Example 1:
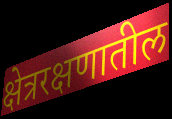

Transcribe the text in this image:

क्षेत्ररक्षणातील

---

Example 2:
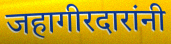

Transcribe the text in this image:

जहागीरदारांनी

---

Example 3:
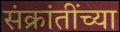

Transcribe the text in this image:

संक्रांतींच्या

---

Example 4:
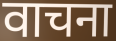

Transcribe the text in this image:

वाचना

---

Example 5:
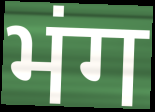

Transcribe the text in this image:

भंग